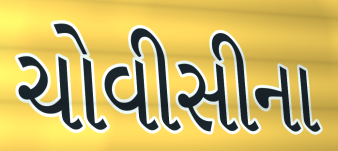
ચોવીસીના